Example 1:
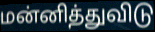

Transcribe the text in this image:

மன்னித்துவிடு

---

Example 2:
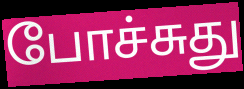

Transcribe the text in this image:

போச்சுது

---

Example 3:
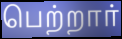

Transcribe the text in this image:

பெற்றார்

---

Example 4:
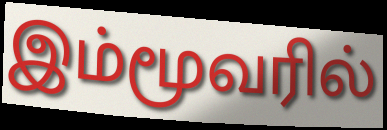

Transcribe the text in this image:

இம்மூவரில்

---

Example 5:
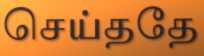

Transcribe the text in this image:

செய்ததே